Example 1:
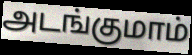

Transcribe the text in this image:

அடங்குமாம்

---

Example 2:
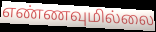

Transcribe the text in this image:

எண்ணவுமில்லை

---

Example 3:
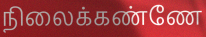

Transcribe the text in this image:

நிலைக்கண்ணே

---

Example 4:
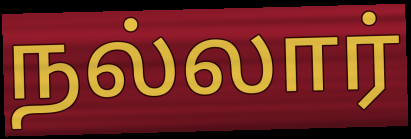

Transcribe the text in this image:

நல்லார்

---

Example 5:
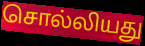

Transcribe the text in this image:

சொல்லியது